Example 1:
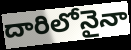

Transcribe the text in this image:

దారిలోనైనా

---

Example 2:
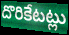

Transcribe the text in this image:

దొరికేటట్లు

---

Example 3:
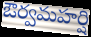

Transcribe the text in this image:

ఔర్వమహర్షి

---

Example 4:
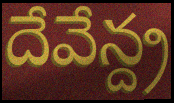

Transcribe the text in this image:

దేవేన్ద్ర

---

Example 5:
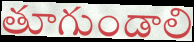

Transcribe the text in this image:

తూగుండాలి